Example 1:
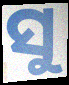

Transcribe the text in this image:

ସୁ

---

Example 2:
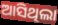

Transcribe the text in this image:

ଆସିଥିଲା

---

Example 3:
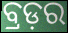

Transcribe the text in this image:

ବ୍ରଡ଼ର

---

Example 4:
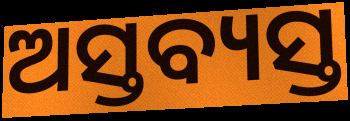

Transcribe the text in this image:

ଅସ୍ତବ୍ୟସ୍ତ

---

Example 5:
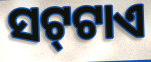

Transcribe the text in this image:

ସଟ୍‍ଟାଏ